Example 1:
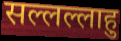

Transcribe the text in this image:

सल्लल्लाहु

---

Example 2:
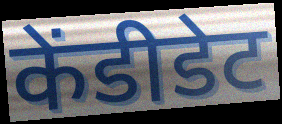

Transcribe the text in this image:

केंडीडेट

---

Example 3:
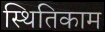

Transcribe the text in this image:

स्थितिकाम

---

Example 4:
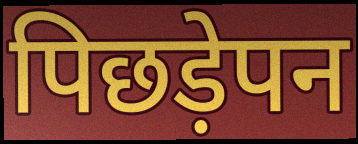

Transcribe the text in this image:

पिछड़ेपन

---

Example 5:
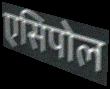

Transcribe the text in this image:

एसिपोल